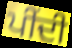
ਪੀਂਦੀ